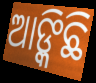
ଆଙ୍କିଛି